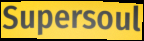
Supersoul